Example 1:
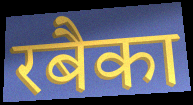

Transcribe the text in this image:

रबैका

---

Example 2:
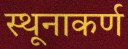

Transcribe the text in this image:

स्थूनाकर्ण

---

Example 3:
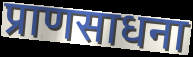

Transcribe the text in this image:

प्राणसाधना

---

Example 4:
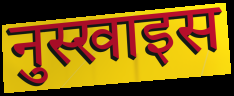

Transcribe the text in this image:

नुस्खाइस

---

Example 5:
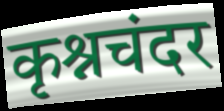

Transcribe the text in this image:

कृश्नचंदर